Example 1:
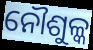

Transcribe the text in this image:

ନୌଶୁଳ୍କ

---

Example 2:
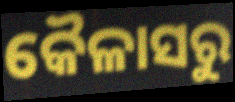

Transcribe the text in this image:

କୈଳାସରୁ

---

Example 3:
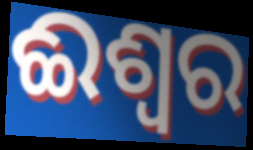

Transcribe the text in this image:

ଈଶ୍ଵର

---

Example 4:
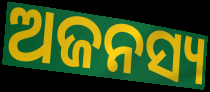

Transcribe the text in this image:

ଅଜନସ୍ୟ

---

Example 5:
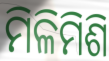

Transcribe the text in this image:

ମିଳିମିଶି